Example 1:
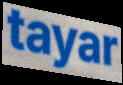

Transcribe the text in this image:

tayar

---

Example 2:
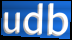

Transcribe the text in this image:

udb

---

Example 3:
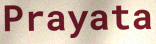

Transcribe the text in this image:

Prayata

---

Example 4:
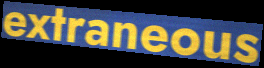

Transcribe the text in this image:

extraneous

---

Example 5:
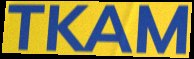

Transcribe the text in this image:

TKAM